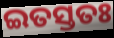
ଇତସ୍ତତଃ